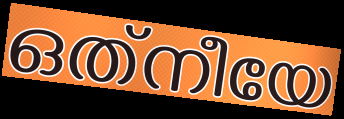
ഒത്‌നീയേ